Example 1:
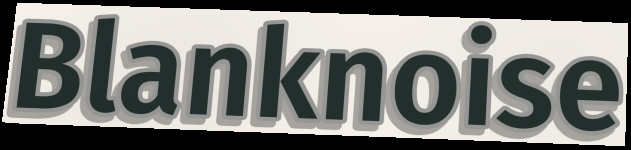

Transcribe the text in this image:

Blanknoise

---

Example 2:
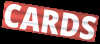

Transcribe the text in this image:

CARDS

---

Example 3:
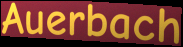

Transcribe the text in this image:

Auerbach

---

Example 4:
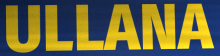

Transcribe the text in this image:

ULLANA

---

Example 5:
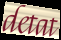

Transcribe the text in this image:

detat